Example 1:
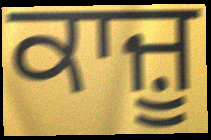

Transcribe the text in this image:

ਕਾਜ਼ੂ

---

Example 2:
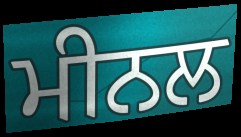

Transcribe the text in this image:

ਮੀਨਲ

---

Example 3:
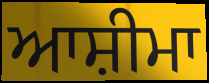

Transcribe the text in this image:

ਆਸ਼ੀਮਾ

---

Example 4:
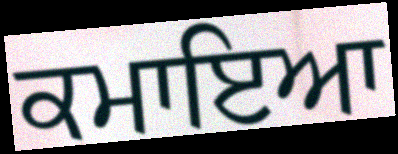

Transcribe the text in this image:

ਕਮਾਇਆ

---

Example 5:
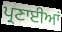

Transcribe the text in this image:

ਪ੍ਰਣਾਈਆਂ